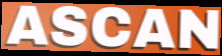
ASCAN